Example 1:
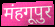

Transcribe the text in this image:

मंहगूपुर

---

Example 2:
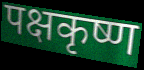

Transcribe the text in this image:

पक्षकृष्ण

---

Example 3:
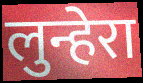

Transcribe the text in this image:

लुन्हेरा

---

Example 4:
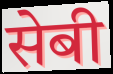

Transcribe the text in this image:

सेबी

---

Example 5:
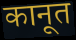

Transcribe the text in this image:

कानूत